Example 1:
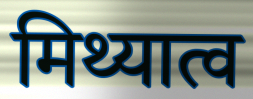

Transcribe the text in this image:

मिथ्यात्व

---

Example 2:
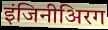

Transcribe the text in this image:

इंजिनीअिरग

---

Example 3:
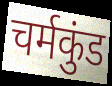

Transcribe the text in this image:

चर्मकुंड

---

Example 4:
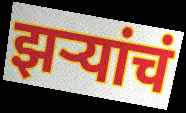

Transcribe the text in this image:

झर्‍यांचं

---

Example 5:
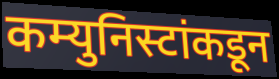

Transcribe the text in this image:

कम्युनिस्टांकडून